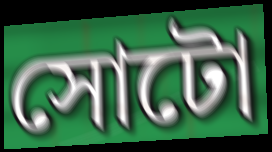
সোটো